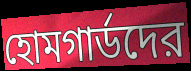
হোমগার্ডদের